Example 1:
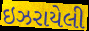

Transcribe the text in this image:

ઇઝરાયેલી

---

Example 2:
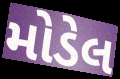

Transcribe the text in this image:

મોડેલ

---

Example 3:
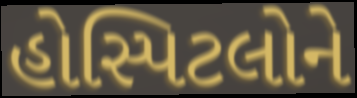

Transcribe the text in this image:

હોસ્પિટલોને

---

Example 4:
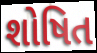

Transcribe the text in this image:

શોષિત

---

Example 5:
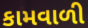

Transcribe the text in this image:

કામવાળી